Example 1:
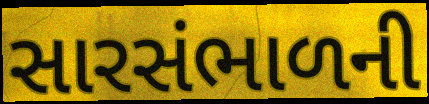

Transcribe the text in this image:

સારસંભાળની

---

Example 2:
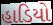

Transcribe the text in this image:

હાડિયો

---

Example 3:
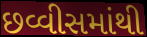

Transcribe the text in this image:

છવ્વીસમાંથી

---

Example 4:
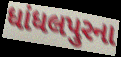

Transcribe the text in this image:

ધાંધલપુરના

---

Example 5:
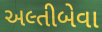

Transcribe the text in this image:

અલ્તીબેવા